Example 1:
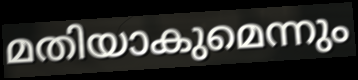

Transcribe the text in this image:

മതിയാകുമെന്നും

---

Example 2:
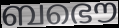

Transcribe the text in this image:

ബഭൌ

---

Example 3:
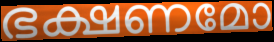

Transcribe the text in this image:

ഭക്ഷണമോ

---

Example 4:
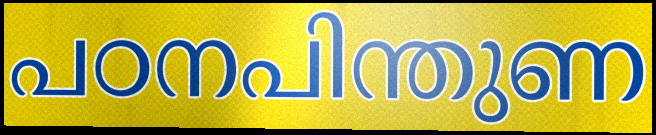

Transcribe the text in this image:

പഠനപിന്തുണ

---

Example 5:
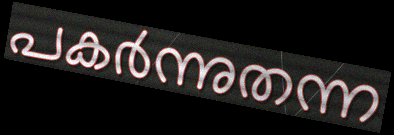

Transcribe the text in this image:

പകർന്നുതന്ന